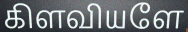
கிளவியளே